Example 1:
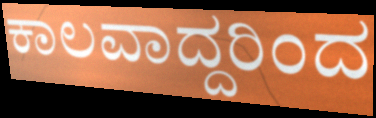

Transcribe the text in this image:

ಕಾಲವಾದ್ದರಿಂದ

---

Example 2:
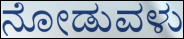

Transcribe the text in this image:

ನೋಡುವಳು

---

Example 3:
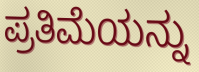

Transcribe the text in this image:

ಪ್ರತಿಮೆಯನ್ನು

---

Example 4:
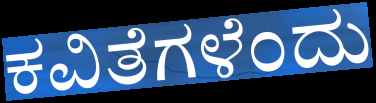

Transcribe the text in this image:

ಕವಿತೆಗಳೆಂದು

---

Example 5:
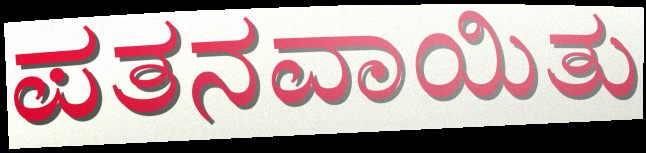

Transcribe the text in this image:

ಪತನವಾಯಿತು